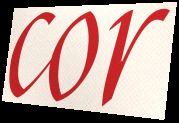
cor